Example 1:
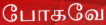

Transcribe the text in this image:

போகவே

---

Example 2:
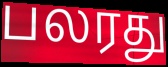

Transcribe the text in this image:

பலரது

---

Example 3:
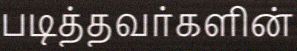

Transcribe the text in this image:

படித்தவர்களின்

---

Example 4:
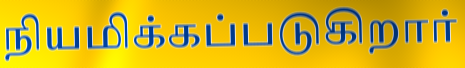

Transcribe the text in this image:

நியமிக்கப்படுகிறார்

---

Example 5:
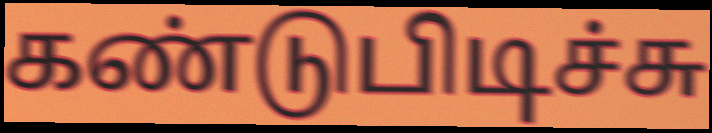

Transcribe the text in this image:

கண்டுபிடிச்சு